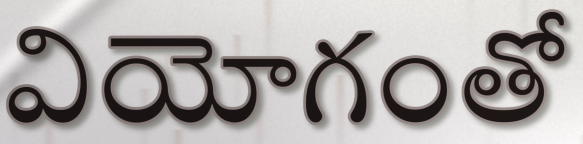
వియోగంతో